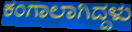
ಕಂಗಾಲಾಗಿದ್ದಳು